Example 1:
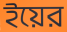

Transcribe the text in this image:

ইয়ের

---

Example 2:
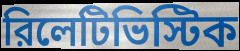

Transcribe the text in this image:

রিলেটিভিস্টিক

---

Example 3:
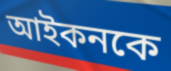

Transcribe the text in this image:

আইকনকে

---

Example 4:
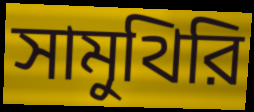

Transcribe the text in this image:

সামুথিরি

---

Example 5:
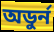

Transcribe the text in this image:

অডুর্ন